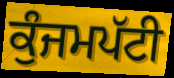
ਕੁੰਜਮਪੱਟੀ